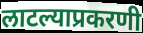
लाटल्याप्रकरणी